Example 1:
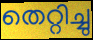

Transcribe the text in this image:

തെറ്റിച്ചു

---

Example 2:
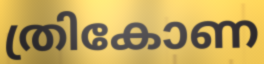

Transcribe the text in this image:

ത്രികോണ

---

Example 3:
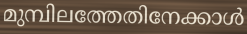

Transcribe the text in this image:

മുമ്പിലത്തേതിനേക്കാൾ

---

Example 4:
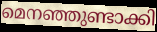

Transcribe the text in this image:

മെനഞ്ഞുണ്ടാക്കി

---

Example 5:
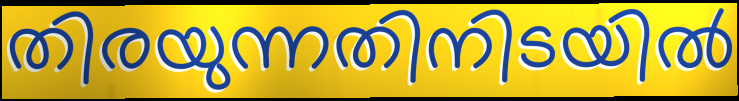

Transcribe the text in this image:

തിരയുന്നതിനിടയിൽ